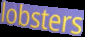
lobsters